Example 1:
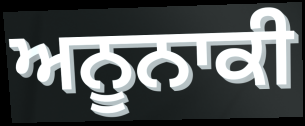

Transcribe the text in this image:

ਅਨੂਨਾਕੀ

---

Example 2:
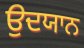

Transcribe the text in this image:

ਉਦਯਾਨ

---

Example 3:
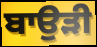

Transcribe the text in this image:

ਬਾਉੜੀ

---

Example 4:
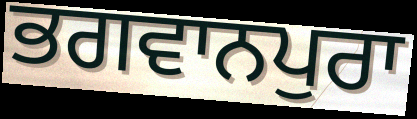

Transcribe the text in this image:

ਭਗਵਾਨਪੁਰਾ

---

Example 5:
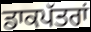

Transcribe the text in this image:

ਡਾਕਪੱਤਰਾਂ